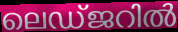
ലെഡ്ജറിൽ